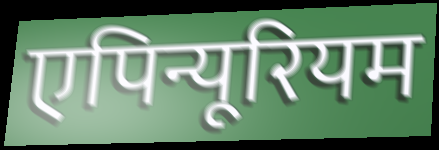
एपिन्यूरियम